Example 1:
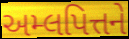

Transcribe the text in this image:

અમ્લપિત્તને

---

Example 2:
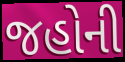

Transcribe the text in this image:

જહોની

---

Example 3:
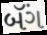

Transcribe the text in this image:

બૅંગ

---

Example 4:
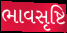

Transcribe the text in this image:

ભાવસૃષ્ટિ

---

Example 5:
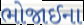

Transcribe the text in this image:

ભોજાઈના